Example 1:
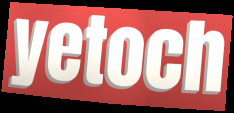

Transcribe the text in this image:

yetoch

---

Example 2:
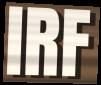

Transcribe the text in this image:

IRF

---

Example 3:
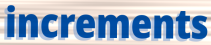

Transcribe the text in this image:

increments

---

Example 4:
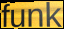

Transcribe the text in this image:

funk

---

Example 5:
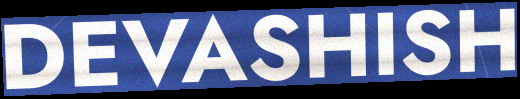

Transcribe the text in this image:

DEVASHISH